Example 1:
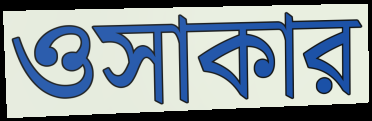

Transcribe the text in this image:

ওসাকার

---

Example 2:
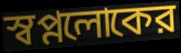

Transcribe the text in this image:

স্বপ্নলোকের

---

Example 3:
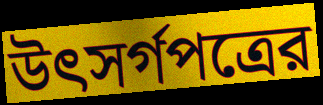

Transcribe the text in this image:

উৎসর্গপত্রের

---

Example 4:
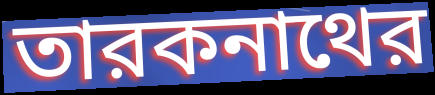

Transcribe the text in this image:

তারকনাথের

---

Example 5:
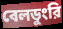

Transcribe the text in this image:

বেলডুংরি